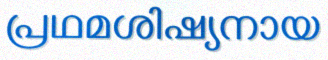
പ്രഥമശിഷ്യനായ